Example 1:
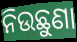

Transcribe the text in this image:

ନିଉଛୁଣା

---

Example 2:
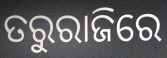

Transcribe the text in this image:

ତରୁରାଜିରେ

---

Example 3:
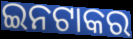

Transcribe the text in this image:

ଇନଟାକର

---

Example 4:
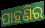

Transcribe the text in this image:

ପାହଣିର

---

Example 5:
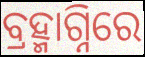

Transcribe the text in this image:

ବ୍ରହ୍ମାଗ୍ନିରେ